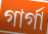
গার্গা